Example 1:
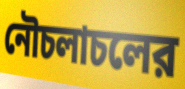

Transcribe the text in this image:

নৌচলাচলের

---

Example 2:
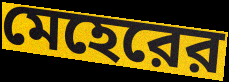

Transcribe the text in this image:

মেহেরের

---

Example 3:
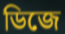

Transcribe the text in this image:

ডিজে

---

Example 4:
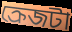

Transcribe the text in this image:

ক্রেজটা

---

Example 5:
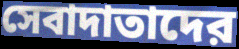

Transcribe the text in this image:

সেবাদাতাদের